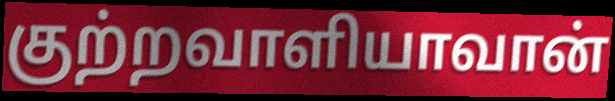
குற்றவாளியாவான்